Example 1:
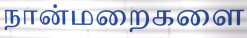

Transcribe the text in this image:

நான்மறைகளை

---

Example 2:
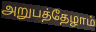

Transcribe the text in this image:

அறுபத்தேழாம்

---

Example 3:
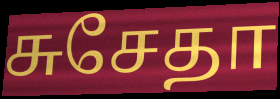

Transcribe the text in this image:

சுசேதா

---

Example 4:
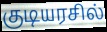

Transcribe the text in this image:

குடியரசில்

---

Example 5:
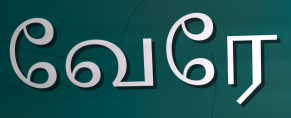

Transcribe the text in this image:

வேரே